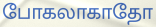
போகலாகாதோ